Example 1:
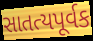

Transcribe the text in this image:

સાતત્યપૂર્વક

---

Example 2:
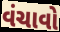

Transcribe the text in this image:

વંચાવો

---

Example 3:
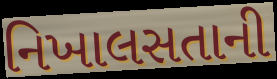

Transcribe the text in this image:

નિખાલસતાની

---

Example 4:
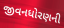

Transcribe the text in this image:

જીવનધોરણની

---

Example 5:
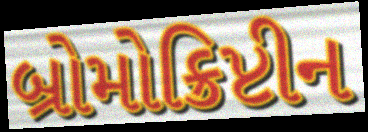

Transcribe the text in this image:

બ્રોમોક્રિપ્ટીન